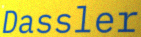
Dassler